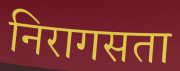
निरागसता